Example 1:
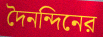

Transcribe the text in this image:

দৈনন্দিনের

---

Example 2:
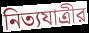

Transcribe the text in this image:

নিত্যযাত্রীর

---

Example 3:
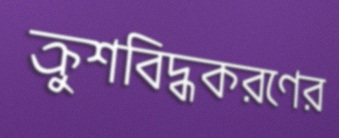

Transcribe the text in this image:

ক্রুশবিদ্ধকরণের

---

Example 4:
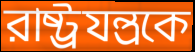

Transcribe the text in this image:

রাষ্ট্রযন্ত্রকে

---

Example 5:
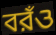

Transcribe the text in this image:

বরঁও